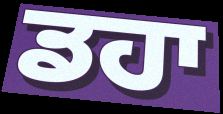
ਡਹਾ